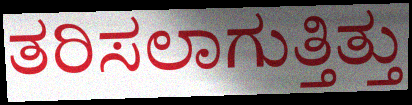
ತರಿಸಲಾಗುತ್ತಿತ್ತು